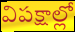
విపక్షాల్లో